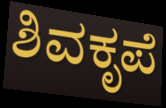
ಶಿವಕೃಪೆ